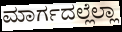
ಮಾರ್ಗದಲ್ಲೆಲ್ಲಾ